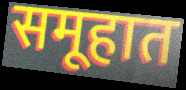
समूहात